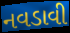
નવડાવી